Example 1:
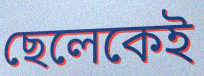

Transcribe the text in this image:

ছেলেকেই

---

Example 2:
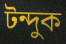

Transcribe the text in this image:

টন্দুক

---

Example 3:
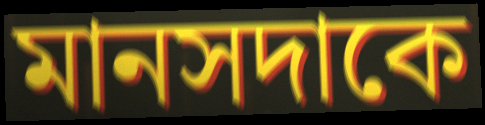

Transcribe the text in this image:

মানসদাকে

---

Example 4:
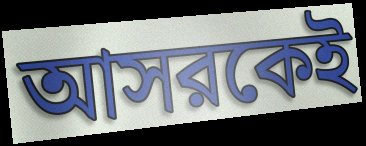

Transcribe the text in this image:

আসরকেই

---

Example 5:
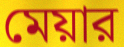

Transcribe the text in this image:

মেয়ার